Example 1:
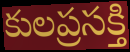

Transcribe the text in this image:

కులప్రసక్తి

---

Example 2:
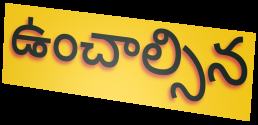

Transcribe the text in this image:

ఉంచాల్సిన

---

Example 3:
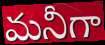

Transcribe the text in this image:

మనీగా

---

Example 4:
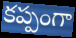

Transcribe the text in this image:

కప్పంగా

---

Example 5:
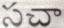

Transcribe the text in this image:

సచా